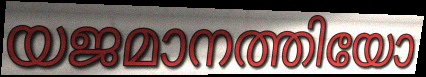
യജമാനത്തിയോ